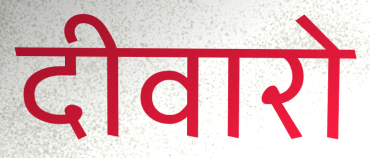
दीवारो